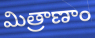
మిత్రాణాం